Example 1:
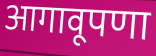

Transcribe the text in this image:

आगावूपणा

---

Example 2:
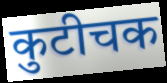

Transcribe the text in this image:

कुटीचक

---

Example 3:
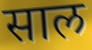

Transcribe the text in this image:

साल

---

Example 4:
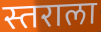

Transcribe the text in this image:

स्तराला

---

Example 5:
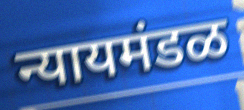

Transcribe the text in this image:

न्यायमंडळ